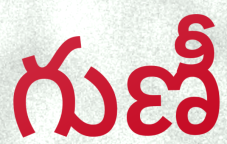
గుణీ